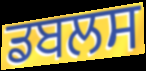
ਡਬਲਸ